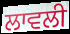
ਲਾਵਲੀ